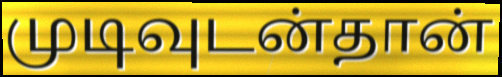
முடிவுடன்தான்